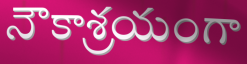
నౌకాశ్రయంగా